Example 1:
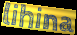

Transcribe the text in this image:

lihina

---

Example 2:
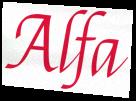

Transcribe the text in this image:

Alfa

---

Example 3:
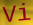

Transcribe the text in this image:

Vi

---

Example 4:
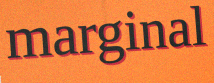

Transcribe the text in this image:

marginal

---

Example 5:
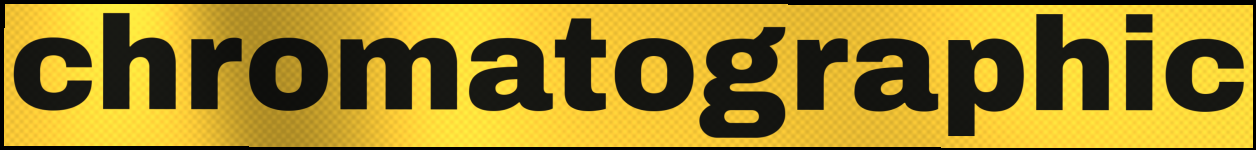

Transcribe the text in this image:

chromatographic